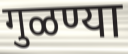
गुळण्या